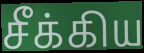
சீக்கிய